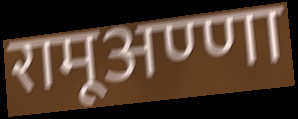
रामूअण्णा